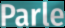
Parle